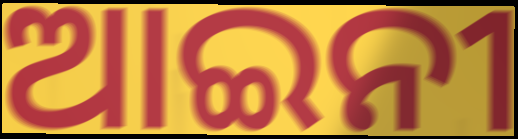
ଆଇନୀ